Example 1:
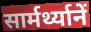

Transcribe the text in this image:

सार्मर्थ्यानें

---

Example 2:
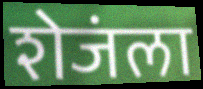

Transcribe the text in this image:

शेजंला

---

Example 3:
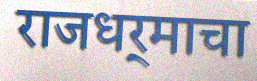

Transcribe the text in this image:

राजधर्माचा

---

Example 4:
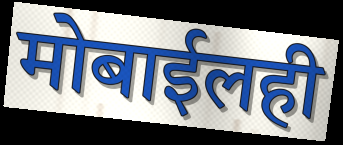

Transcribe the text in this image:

मोबाईलही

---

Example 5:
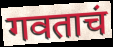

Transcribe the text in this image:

गवताचं